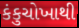
કંકુચોખાથી